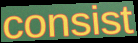
consist